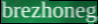
brezhoneg